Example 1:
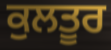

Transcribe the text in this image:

ਕੁਲਤੂਰ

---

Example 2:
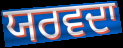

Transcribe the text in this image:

ਯਰਵਦਾ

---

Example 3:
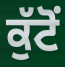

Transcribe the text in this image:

ਕੁੱਟੋਂ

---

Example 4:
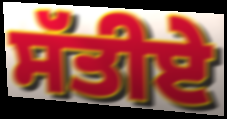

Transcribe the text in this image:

ਸੱਤੀਏ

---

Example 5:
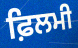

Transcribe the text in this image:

ਫ਼ਿਲਮੀ